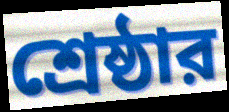
শ্রেষ্ঠার